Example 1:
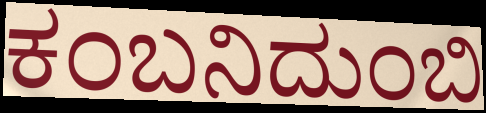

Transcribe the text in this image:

ಕಂಬನಿದುಂಬಿ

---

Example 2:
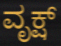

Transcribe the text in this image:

ವೃಕ್ಷ್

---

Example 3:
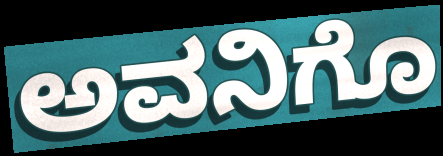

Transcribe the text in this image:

ಅವನಿಗೊ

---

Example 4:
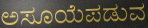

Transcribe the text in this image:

ಅಸೂಯೆಪಡುವ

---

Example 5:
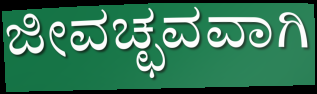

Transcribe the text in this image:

ಜೀವಚ್ಛವವಾಗಿ